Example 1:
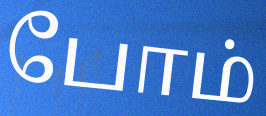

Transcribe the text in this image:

போம்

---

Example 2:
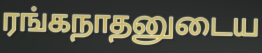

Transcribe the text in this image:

ரங்கநாதனுடைய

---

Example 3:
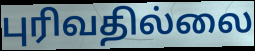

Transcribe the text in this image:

புரிவதில்லை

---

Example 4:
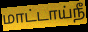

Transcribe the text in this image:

மாட்டாய்நீ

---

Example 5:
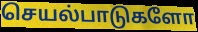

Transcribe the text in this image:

செயல்பாடுகளோ